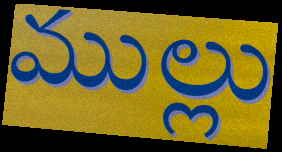
ముల్లు